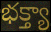
భక్త్యా